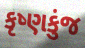
કૃષ્ણકુંજ